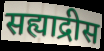
सह्याद्रीस